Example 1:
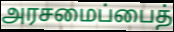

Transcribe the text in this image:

அரசமைப்பைத்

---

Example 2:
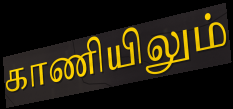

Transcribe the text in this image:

காணியிலும்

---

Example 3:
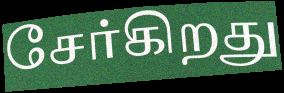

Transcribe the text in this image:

சேர்கிறது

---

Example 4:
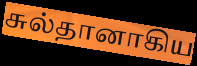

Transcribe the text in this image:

சுல்தானாகிய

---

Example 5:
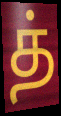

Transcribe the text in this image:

த்